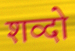
शव्दो